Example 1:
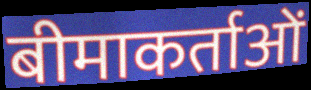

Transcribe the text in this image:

बीमाकर्ताओं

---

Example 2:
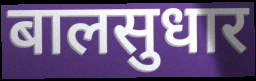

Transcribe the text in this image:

बालसुधार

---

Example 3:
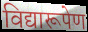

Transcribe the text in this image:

विद्यारूपेण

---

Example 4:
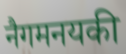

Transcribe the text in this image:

नैगमनयकी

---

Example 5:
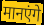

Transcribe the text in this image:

मानएंगे